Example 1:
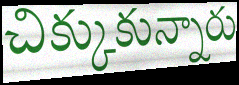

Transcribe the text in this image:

చిక్కుకున్నారు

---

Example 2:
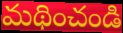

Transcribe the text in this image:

మథించండి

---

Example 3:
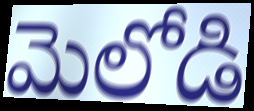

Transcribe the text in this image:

మెలోడి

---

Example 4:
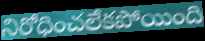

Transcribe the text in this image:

నిరోధించలేకపోయింది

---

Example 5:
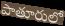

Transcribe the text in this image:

పాతూరులో